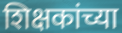
शिक्षकांच्या